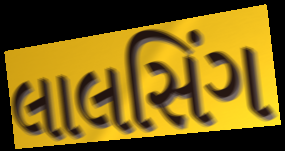
લાલસિંગ